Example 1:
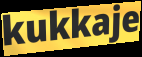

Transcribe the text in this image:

kukkaje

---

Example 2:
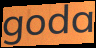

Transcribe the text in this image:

goda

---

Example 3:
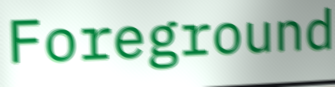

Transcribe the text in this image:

Foreground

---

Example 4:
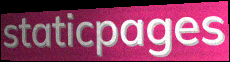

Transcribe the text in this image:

staticpages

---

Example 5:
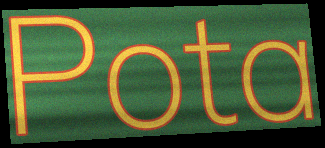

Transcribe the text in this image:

Pota